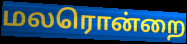
மலரொன்றை